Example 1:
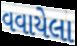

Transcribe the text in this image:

વવાયેલા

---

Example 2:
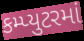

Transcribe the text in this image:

કમ્પ્યુટરમાં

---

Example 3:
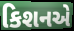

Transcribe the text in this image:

કિશનએ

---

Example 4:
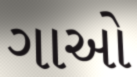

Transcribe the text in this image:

ગાઓ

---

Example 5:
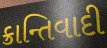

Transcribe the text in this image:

ક્રાન્તિવાદી